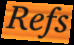
Refs